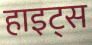
हाइट्स